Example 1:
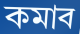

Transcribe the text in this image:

কমাব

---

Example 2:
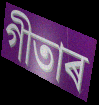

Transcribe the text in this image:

গীতাৰ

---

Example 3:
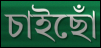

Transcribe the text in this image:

চাইছোঁ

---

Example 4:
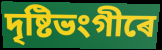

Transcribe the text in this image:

দৃষ্টিভংগীৰে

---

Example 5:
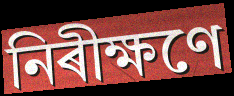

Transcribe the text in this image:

নিৰীক্ষণে